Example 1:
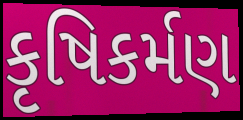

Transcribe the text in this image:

કૃષિકર્મણ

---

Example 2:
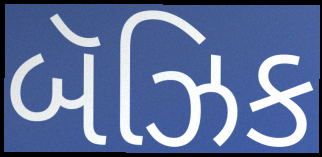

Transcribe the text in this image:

બૅઝિક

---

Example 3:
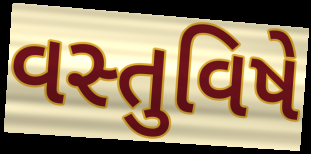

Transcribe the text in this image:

વસ્તુવિષે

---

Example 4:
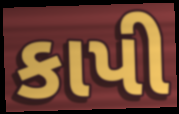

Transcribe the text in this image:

કાપી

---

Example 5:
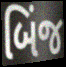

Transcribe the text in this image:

બિંજ